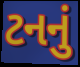
ટનનું